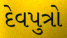
દેવપુત્રો